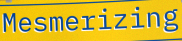
Mesmerizing